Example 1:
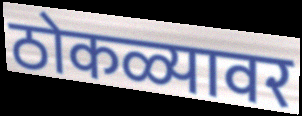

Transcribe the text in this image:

ठोकळ्यावर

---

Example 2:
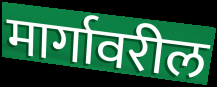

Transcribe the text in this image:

मार्गावरील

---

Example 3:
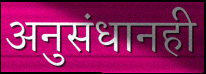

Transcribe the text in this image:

अनुसंधानही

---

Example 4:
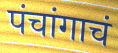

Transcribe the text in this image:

पंचांगाचं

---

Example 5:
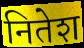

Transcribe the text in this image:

नितेश